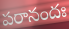
పరానందః